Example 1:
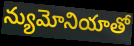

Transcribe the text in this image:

న్యుమోనియాతో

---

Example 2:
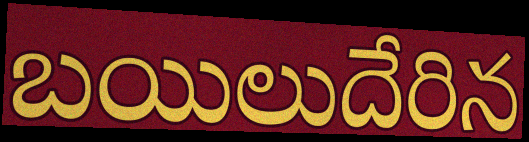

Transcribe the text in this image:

బయిలుదేరిన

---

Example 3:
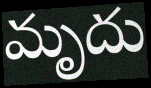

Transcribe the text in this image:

మృదు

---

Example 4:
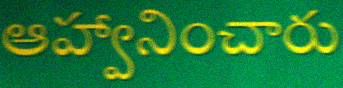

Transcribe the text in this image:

ఆహ్వానించారు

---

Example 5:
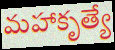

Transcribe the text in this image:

మహాకృత్యే